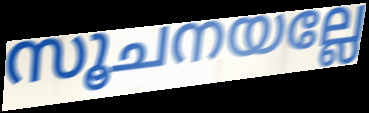
സൂചനയല്ലേ